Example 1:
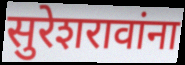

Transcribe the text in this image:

सुरेशरावांना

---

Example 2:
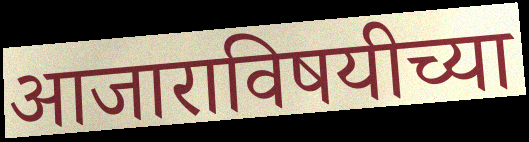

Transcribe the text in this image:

आजाराविषयीच्या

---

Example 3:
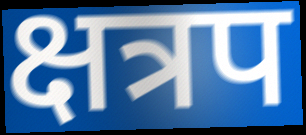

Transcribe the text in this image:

क्षत्रप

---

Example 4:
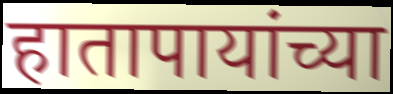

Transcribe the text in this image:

हातापायांच्या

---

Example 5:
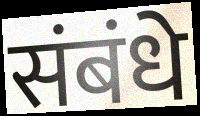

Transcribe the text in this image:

संबंधे